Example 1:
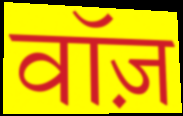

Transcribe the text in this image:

वॉज़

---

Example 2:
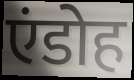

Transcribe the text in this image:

एंडोह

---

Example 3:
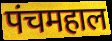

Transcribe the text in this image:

पंचमहाल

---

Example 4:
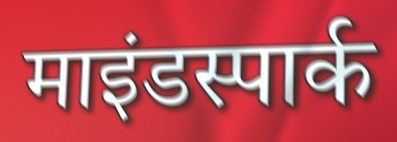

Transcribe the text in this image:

माइंडस्पार्क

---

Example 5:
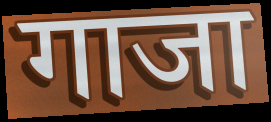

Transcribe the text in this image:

गाजा